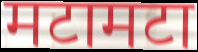
मटामटा